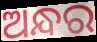
ଅନ୍ଧର